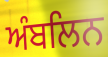
ਅੰਬਲਿਨ